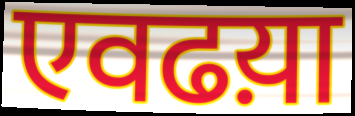
एवढय़ा